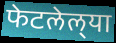
फेटलेल्या